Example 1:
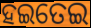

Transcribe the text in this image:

ହଇତେଇ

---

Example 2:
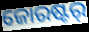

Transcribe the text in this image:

ଜୋରଷ୍ଟର୍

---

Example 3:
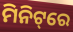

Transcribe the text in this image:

ମିନିଟ୍‌ରେ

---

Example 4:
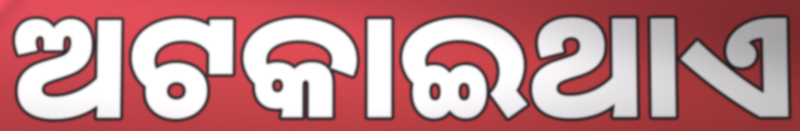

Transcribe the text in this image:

ଅଟକାଇଥାଏ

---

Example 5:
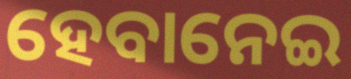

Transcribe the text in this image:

ହେବାନେଇ